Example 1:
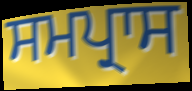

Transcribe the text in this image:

ਸਮਪ੍ਰਾਸ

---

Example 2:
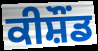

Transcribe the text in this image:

ਕੀਸ਼ੌਂਡ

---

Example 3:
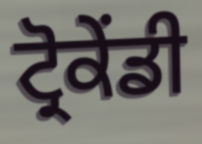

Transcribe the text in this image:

ਟ੍ਰੋਕੇਂਡੀ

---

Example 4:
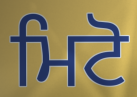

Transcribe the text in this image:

ਮਿਟੋ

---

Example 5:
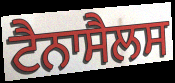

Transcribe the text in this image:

ਟੈਨਾਸੈਲਸ